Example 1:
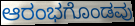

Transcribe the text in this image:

ಆರಂಭಗೊಂಡವು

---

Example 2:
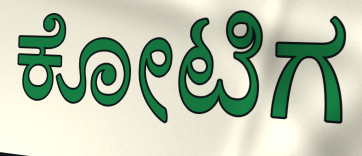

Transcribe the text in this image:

ಕೋಟಿಗ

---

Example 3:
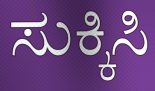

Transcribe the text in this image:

ಸುಕ್ಕಿಸಿ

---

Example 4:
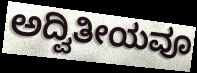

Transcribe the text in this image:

ಅದ್ವಿತೀಯವೂ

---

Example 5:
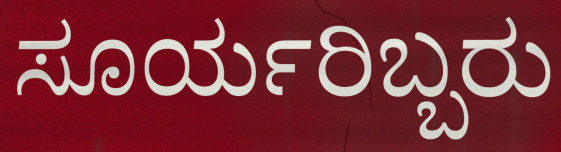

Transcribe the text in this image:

ಸೂರ್ಯರಿಬ್ಬರು